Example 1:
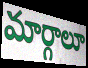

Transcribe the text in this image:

మార్గాలూ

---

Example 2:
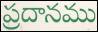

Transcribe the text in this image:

ప్రదానము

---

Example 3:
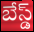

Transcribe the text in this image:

బేస్డ్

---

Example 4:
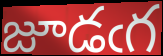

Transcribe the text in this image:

జూడఁగ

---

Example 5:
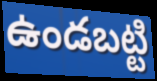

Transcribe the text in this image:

ఉండబట్టి